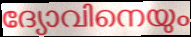
ദ്യോവിനെയും